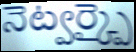
నెట్వర్క్పై